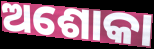
ଅଶୋକା